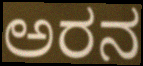
ಅರನ